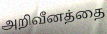
அறிவீனத்தை